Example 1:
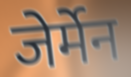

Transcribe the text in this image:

जेर्मेन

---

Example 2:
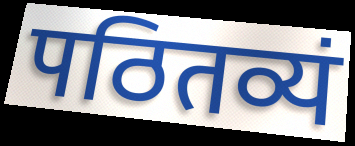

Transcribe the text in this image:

पठितव्यं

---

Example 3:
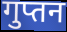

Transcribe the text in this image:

गुप्तन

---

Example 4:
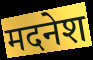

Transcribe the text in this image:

मदनेश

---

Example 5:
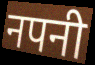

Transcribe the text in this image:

नपनी